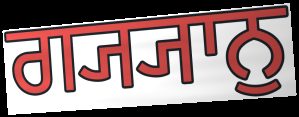
ਗ੍ਯ੍ਯਾਨੁ